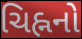
ચિહ્નનો